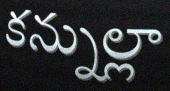
కన్నుల్లా